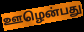
ஊழென்பது